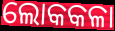
ଲୋକକଳା